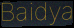
Baidya